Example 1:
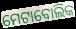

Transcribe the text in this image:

ମେଟାବୋଲିକ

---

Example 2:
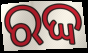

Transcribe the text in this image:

ରଦ୍ଦ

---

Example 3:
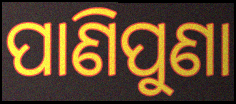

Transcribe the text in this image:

ପାଣିପୁଣା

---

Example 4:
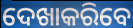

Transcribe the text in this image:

ଦେଖାକରିବେ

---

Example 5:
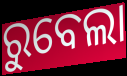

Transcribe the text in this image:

ରୁବେଲା